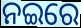
ନଇରେ